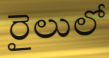
రైలులో